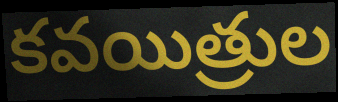
కవయిత్రుల